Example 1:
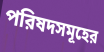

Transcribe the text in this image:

পরিষদসমূহের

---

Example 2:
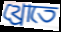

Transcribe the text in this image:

থ্রোতে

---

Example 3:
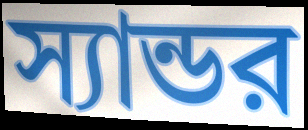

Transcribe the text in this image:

স্যান্ডর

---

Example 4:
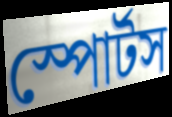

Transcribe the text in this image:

স্পোর্টস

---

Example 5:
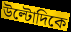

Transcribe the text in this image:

উল্টোদিকে